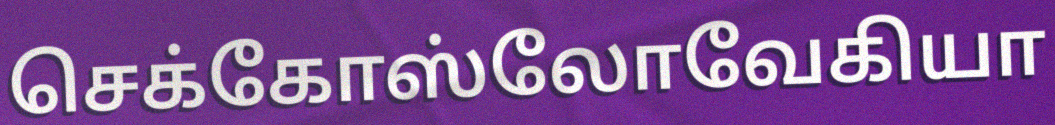
செக்கோஸ்லோவேகியா